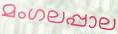
മംഗലപ്പാല